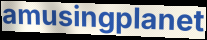
amusingplanet